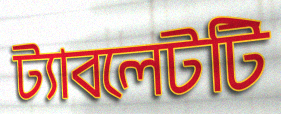
ট্যাবলেটটি